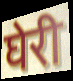
घेरी